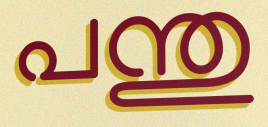
പന്തു